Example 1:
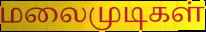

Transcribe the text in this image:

மலைமுடிகள்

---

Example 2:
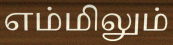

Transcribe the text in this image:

எம்மிலும்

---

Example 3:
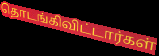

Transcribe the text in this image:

தொடங்கிவிட்டார்கள்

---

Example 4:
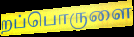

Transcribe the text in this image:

றப்பொருளை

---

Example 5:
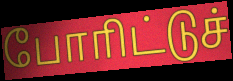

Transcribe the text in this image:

போரிட்டுச்